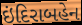
ઇંદિરાબહેન